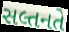
સલ્તનતે